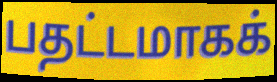
பதட்டமாகக்